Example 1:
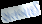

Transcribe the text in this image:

સતબાઈ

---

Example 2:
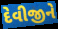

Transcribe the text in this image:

દેવીજીને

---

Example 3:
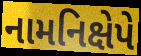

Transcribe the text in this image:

નામનિક્ષેપે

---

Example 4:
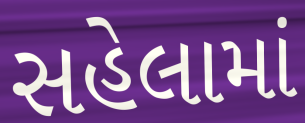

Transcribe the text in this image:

સહેલામાં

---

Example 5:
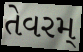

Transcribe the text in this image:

તેવરમ્